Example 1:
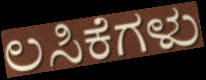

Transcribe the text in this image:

ಲಸಿಕೆಗಳು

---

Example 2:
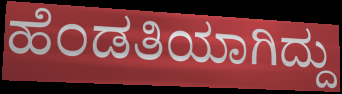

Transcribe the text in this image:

ಹೆಂಡತಿಯಾಗಿದ್ದು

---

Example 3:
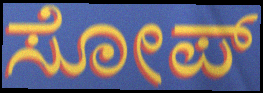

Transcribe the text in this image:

ಸೋಪ್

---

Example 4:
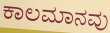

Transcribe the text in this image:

ಕಾಲಮಾನವು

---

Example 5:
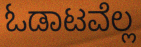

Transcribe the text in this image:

ಓಡಾಟವೆಲ್ಲ